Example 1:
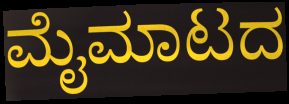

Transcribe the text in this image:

ಮೈಮಾಟದ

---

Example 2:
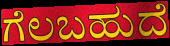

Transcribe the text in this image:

ಗೆಲಬಹುದೆ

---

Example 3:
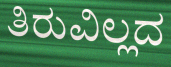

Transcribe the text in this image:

ತಿರುವಿಲ್ಲದ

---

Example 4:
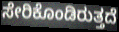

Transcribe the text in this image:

ಸೇರಿಕೊಂಡಿರುತ್ತದೆ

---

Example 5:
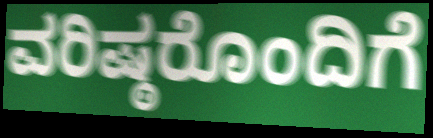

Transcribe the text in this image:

ವರಿಷ್ಠರೊಂದಿಗೆ